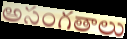
అసంగతాలు